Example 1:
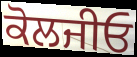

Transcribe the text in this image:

ਕੋਲਜੀਓ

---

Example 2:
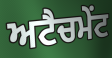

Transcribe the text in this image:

ਅਟੈਚਮੇਂਟ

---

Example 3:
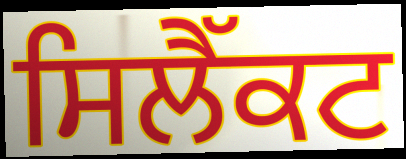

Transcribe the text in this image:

ਸਿਲੈੱਕਟ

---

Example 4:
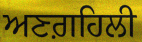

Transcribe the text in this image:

ਅਣਗ਼ਹਿਲੀ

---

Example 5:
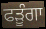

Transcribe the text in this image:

ਫੜੂੰਗਾ